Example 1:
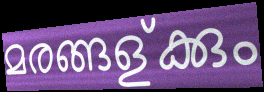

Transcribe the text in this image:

മരങ്ങള്ക്കും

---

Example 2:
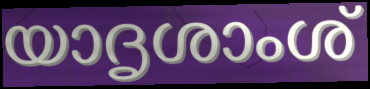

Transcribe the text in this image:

യാദൃശാംശ്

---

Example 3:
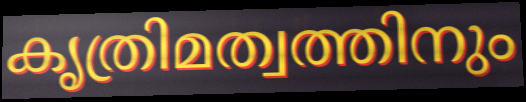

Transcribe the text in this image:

കൃത്രിമത്വത്തിനും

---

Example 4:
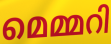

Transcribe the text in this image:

മെമ്മറി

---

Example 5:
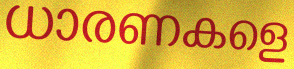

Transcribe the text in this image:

ധാരണകളെ